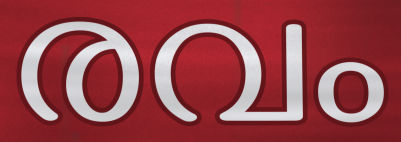
രവം